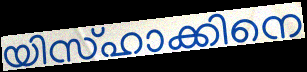
യിസ്ഹാക്കിനെ